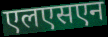
एलएसएन